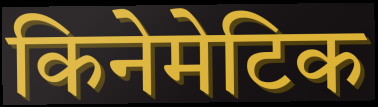
किनेमेटिक